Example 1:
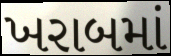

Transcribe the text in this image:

ખરાબમાં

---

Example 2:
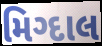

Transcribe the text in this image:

મિગ્દાલ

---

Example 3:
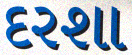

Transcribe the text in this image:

દરશા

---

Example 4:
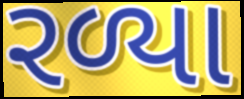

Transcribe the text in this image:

રળ્યા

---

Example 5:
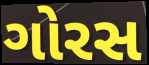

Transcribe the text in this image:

ગોરસ